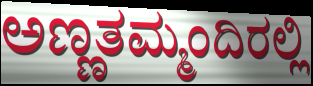
ಅಣ್ಣತಮ್ಮಂದಿರಲ್ಲಿ